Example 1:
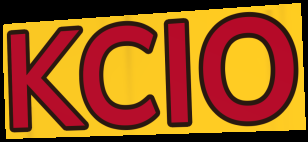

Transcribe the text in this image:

KCIO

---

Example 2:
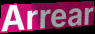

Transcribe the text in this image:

Arrear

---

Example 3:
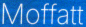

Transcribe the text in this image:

Moffatt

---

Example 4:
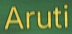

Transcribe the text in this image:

Aruti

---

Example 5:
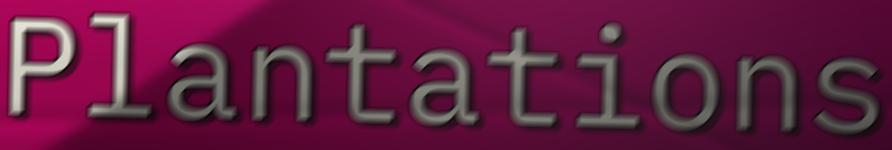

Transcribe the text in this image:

Plantations